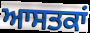
ਆਸਤਕਾਂ